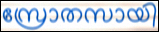
സ്രോതസായി